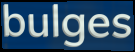
bulges